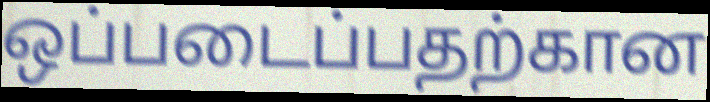
ஒப்படைப்பதற்கான